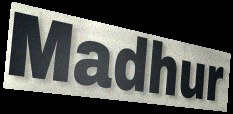
Madhur